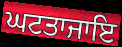
ਘਟਤਾਜਾਇ